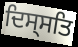
ਦਿਸ੍ਸਤਿ